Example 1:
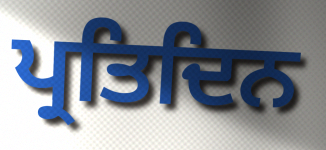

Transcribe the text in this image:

ਪ੍ਰਤਿਦਿਨ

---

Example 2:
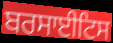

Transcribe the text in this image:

ਬਰਸਾਈਟਿਸ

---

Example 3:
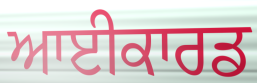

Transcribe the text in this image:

ਆਈਕਾਰਡ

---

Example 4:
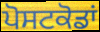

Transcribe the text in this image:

ਪੋਸਟਕੋਡਾਂ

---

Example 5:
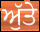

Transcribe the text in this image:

ਅੁੱਤੇ